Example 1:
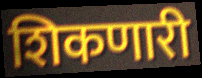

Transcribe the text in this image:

शिकणारी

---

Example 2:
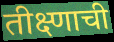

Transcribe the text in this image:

तीक्ष्णाची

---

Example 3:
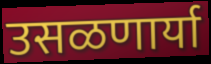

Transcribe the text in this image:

उसळणार्या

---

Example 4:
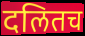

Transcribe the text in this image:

दलितच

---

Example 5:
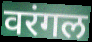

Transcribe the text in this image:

वरंगल